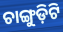
ଚାଙ୍ଗୁଡ଼ିଟି